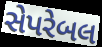
સેપરેબલ